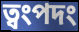
ত্বংপদং